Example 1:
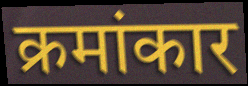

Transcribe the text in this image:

क्रमांकार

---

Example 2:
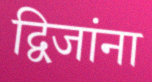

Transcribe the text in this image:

द्विजांना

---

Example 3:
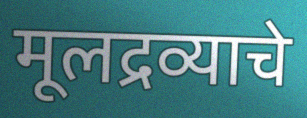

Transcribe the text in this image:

मूलद्रव्याचे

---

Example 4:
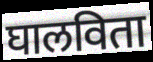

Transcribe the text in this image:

घालविता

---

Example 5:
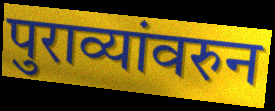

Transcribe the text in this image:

पुराव्यांवरुन